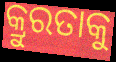
କ୍ରୁରତାକୁ